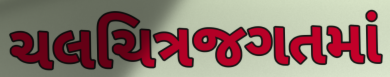
ચલચિત્રજગતમાં